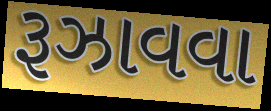
રૂઝાવવા